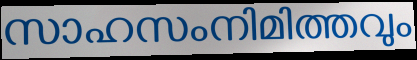
സാഹസംനിമിത്തവും